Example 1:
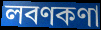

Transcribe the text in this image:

লবণকণা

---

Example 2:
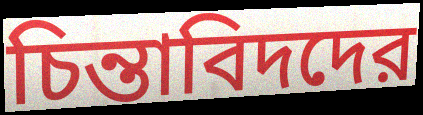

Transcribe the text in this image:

চিন্তাবিদদের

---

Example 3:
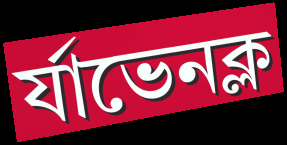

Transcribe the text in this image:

র্যাভেনক্ল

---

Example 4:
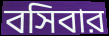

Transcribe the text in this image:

বসিবার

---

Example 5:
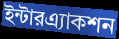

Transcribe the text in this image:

ইন্টারএ্যাকশন